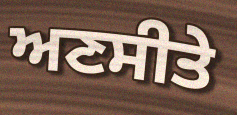
ਅਣਸੀਤੇ